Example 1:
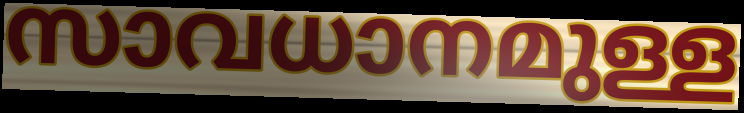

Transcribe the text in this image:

സാവധാനമുള്ള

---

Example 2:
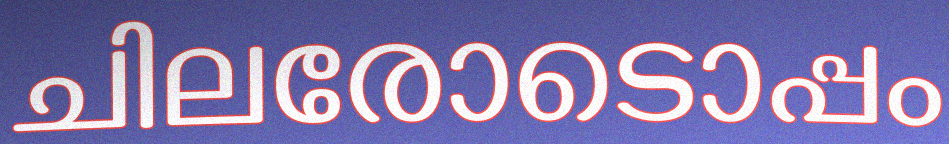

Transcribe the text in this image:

ചിലരോടൊപ്പം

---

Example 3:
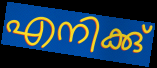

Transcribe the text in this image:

എനിക്കു്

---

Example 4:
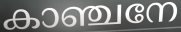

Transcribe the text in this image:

കാഞ്ചനേ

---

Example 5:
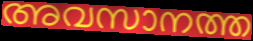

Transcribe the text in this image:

അവസാനത്ത